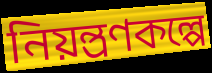
নিয়ন্ত্রণকল্পে